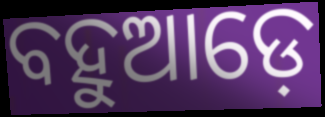
ବହୁଆଡ଼େ